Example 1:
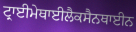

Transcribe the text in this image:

ਟ੍ਰਾਈਮੇਥਾਈਲੈਕਸੈਨਥਾਈਨ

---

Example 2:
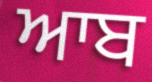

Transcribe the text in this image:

ਆਬ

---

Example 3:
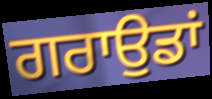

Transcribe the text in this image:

ਗਰਾਉਡਾਂ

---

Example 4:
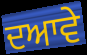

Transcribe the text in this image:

ਦਆਵੇ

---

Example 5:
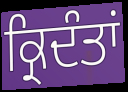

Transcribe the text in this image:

ਕ੍ਰਿਦੰਤਾਂ